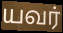
யவர்